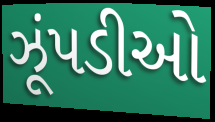
ઝૂંપડીઓ